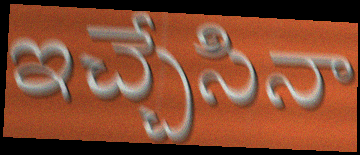
ఇచ్చేసినా